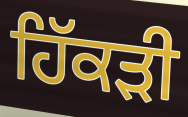
ਹਿੱਕੜੀ